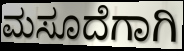
ಮಸೂದೆಗಾಗಿ